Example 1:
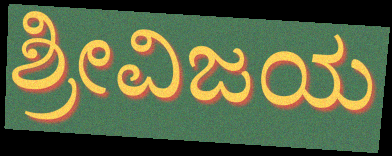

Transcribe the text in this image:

ಶ್ರೀವಿಜಯ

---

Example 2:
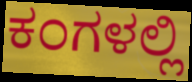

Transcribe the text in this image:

ಕಂಗಳಲ್ಲಿ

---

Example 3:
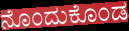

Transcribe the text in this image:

ನೊಂದುಕೊಂಡ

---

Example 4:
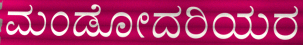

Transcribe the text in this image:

ಮಂಡೋದರಿಯರ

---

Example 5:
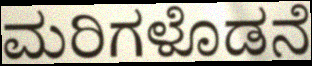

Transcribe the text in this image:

ಮರಿಗಳೊಡನೆ